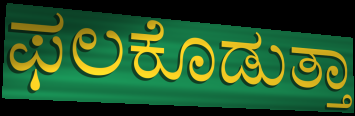
ಫಲಕೊಡುತ್ತಾ